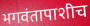
भगवंतापाशीच